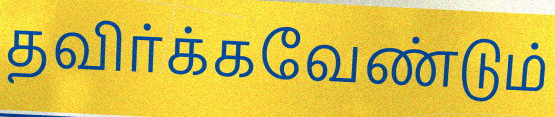
தவிர்க்கவேண்டும்